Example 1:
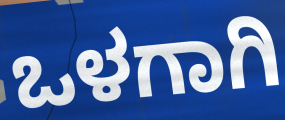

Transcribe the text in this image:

ಒಳಗಾಗಿ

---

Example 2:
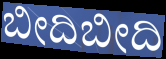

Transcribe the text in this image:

ಬೀದಿಬೀದಿ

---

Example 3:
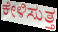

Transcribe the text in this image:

ಕೇಳಿಸುತ್ತ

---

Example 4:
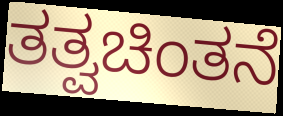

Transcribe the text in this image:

ತತ್ವಚಿಂತನೆ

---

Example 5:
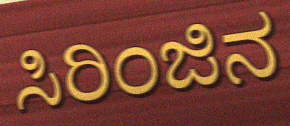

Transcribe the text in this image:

ಸಿರಿಂಜಿನ